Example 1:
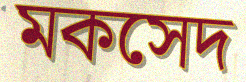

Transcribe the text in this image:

মকসেদ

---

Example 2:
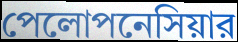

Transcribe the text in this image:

পেলোপনেসিয়ার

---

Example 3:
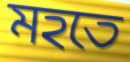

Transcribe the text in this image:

মহতে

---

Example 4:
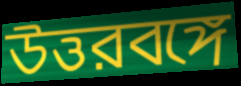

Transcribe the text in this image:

উত্তরবঙ্গে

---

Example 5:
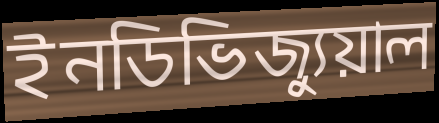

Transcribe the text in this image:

ইনডিভিজ্যুয়াল